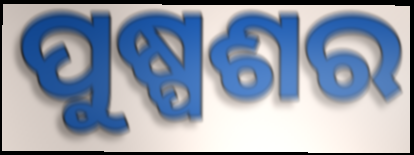
ପୁଷ୍ପଶର